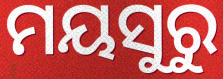
ମୟସୁରୁ